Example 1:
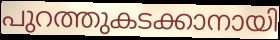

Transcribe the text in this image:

പുറത്തുകടക്കാനായി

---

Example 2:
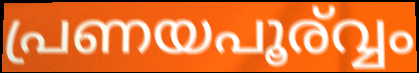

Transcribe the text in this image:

പ്രണയപൂര്വ്വം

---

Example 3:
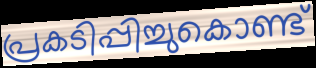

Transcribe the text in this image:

പ്രകടിപ്പിച്ചുകൊണ്ട്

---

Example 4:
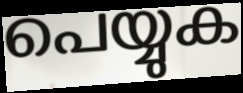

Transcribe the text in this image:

പെയ്യുക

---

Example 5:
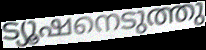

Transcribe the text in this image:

ട്യൂഷനെടുത്തു